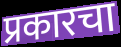
प्रकारचा